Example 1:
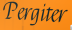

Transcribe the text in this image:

Pergiter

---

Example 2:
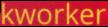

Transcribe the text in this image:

kworker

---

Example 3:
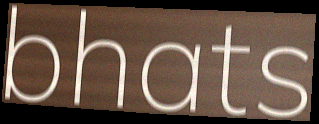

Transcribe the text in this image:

bhats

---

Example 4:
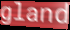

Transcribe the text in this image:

gland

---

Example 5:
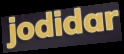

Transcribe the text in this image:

jodidar